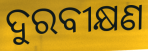
ଦୁରବୀକ୍ଷଣ